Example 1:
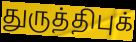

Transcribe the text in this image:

துருத்திபுக்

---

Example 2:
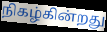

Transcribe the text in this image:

நிகழ்கின்றது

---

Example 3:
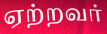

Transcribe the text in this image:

ஏற்றவர்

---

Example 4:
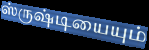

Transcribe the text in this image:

ஸ்ருஷ்டியையும்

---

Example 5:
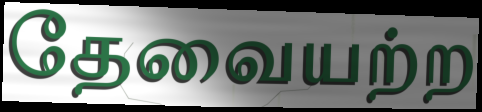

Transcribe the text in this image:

தேவையற்ற